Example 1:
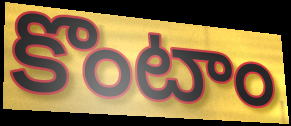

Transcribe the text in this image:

కొంటాం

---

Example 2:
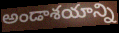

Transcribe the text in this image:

అండాశయాన్ని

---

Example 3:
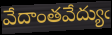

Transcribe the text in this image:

వేదాంతవేద్యుఁ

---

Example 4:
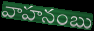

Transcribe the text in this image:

వాహనంబు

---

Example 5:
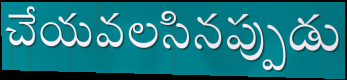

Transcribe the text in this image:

చేయవలసినప్పుడు